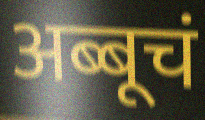
अब्बूचं